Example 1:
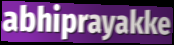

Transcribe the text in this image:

abhiprayakke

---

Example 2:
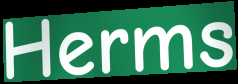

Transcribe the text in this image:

Herms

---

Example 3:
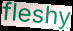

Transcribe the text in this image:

fleshy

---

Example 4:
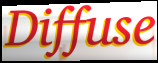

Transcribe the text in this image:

Diffuse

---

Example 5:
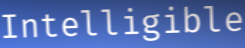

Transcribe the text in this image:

Intelligible